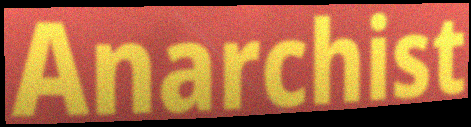
Anarchist